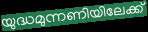
യുദ്ധമുന്നണിയിലേക്ക്